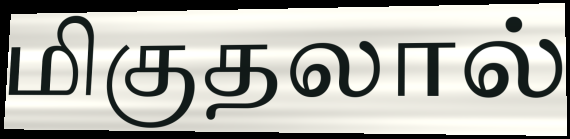
மிகுதலால்